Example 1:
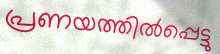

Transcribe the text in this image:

പ്രണയത്തിൽപ്പെട്ടു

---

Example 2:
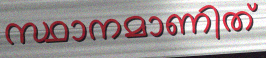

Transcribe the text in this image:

സ്ഥാനമാണിത്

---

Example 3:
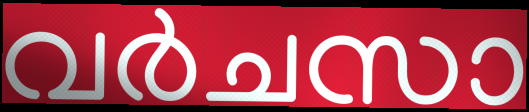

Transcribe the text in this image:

വർചസാ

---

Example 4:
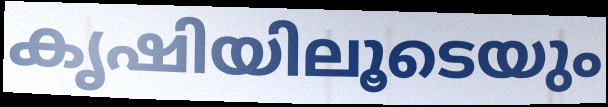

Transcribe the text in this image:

കൃഷിയിലൂടെയും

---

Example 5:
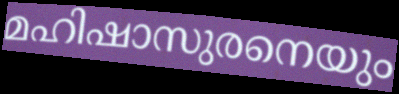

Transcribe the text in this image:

മഹിഷാസുരനെയും